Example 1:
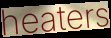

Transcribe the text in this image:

heaters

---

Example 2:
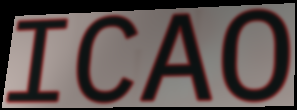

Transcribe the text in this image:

ICAO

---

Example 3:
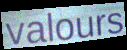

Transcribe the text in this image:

valours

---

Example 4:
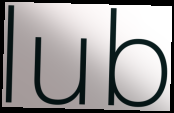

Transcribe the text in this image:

lub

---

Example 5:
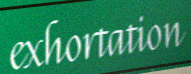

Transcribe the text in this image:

exhortation